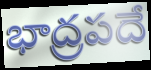
భాద్రపదే